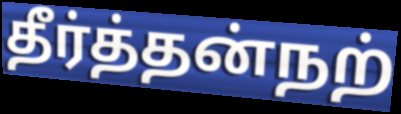
தீர்த்தன்நற்